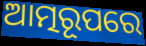
ଆତ୍ମରୂପରେ